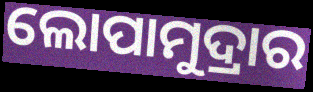
ଲୋପାମୁଦ୍ରାର